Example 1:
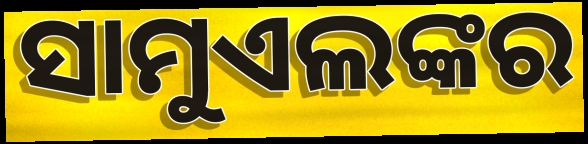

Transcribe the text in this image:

ସାମୁଏଲଙ୍କର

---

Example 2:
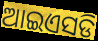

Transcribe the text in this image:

ଆଇଏସଡି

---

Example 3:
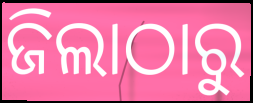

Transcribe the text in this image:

ଜିଲାଠାରୁ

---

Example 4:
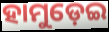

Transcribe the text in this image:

ହାମୁଡ଼େଇ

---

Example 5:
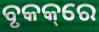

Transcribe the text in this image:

ବୃକକ୍‌ରେ